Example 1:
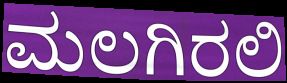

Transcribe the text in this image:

ಮಲಗಿರಲಿ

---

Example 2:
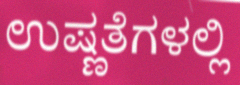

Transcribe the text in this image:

ಉಷ್ಣತೆಗಳಲ್ಲಿ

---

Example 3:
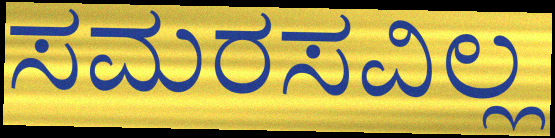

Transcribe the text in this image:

ಸಮರಸವಿಲ್ಲ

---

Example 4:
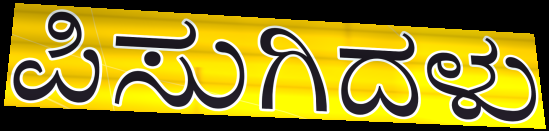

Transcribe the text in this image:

ಪಿಸುಗಿದಳು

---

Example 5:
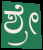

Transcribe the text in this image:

ಶ್ರೇ